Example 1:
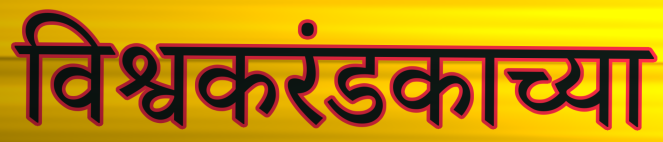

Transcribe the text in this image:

विश्वकरंडकाच्या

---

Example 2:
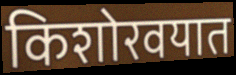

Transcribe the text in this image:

किशोरवयात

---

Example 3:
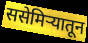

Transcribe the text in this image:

ससेमिऱ्यातून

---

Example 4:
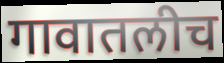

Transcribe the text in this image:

गावातलीच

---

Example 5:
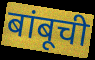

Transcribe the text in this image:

बांबूची